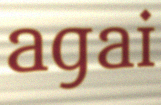
agai